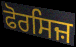
ਫੋਰਸਿਜ਼